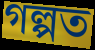
গল্পত